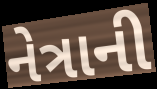
નેત્રાની